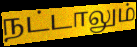
நட்டாலும்